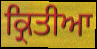
ਕ੍ਰਿਤੀਆ